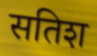
सतिश